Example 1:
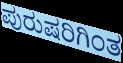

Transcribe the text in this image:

ಪುರುಷರಿಗಿಂತ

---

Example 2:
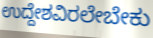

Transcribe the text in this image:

ಉದ್ದೇಶವಿರಲೇಬೇಕು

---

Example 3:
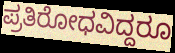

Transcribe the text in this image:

ಪ್ರತಿರೋಧವಿದ್ದರೂ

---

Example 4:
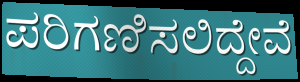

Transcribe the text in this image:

ಪರಿಗಣಿಸಲಿದ್ದೇವೆ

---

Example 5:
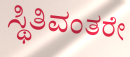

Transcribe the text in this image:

ಸ್ಥಿತಿವಂತರೇ